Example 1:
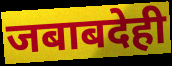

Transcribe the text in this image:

जबाबदेही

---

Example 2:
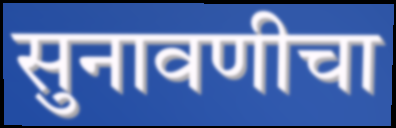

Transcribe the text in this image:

सुनावणीचा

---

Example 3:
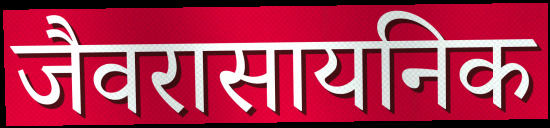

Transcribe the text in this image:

जैवरासायनिक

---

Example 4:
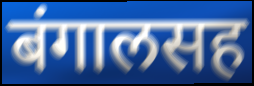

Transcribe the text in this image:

बंगालसह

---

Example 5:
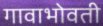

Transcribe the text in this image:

गावाभोवती